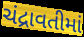
ચંદ્રાવતીમાં